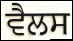
ਵੈਲਸ